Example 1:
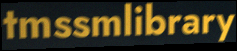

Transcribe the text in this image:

tmssmlibrary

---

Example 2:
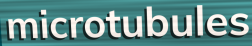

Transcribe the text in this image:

microtubules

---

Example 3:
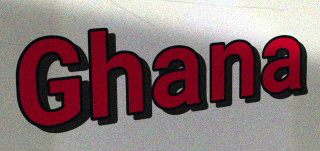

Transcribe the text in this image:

Ghana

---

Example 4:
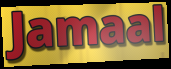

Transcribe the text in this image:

Jamaal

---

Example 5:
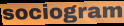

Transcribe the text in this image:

sociogram